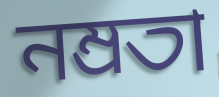
নম্ৰতা